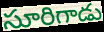
సూరిగాడు